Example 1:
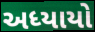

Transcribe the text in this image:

અધ્યાયો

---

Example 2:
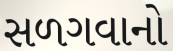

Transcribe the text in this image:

સળગવાનો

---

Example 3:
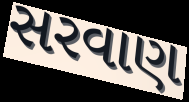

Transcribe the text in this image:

સરવાણ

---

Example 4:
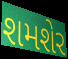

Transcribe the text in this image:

શમશેર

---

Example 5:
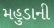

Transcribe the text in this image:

મહુડાની